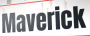
Maverick